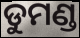
ଡୁମଣ୍ଡ